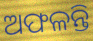
ଅଫଳନ୍ତି